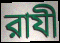
রাযী